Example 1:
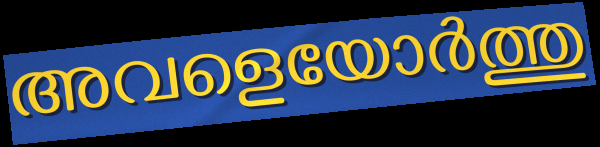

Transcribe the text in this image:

അവളെയോർത്തു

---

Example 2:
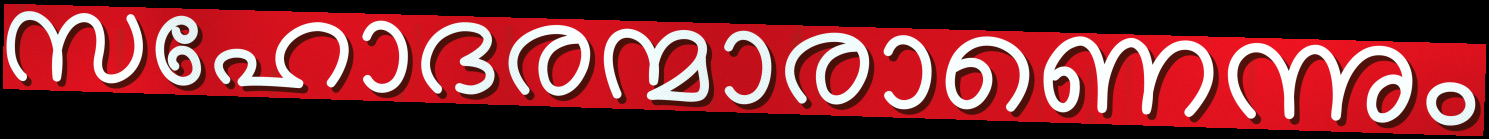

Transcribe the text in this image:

സഹോദരന്മാരാണെന്നും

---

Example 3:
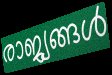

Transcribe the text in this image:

രാജ്യങ്ങൾ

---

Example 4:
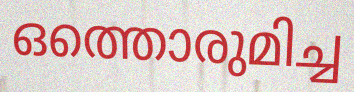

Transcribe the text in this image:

ഒത്തൊരുമിച്ച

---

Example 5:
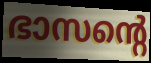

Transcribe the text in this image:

ഭാസന്റെ